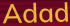
Adad